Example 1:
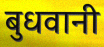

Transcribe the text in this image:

बुधवानी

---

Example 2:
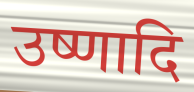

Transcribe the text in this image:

उष्णादि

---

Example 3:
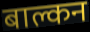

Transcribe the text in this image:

बाल्कन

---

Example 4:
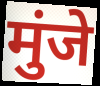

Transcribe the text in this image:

मुंजे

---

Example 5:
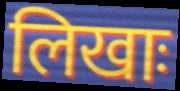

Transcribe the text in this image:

लिखाः